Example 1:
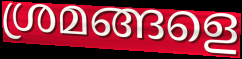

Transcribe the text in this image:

ശ്രമങ്ങളെ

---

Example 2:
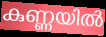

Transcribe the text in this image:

കുണ്ണയിൽ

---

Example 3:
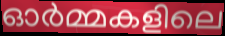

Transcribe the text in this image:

ഓർമ്മകളിലെ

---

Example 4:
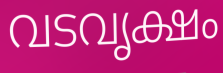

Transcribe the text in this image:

വടവൃക്ഷം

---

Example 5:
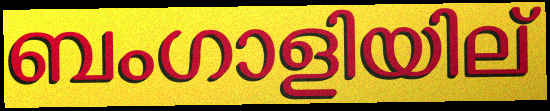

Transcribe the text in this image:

ബംഗാളിയില്